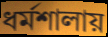
ধর্মশালায়